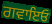
ਗਵਾਇਓ